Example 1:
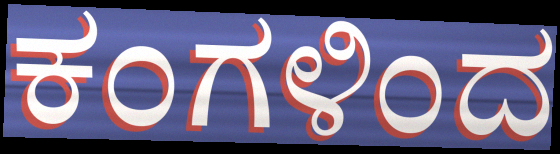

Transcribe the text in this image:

ಕಂಗಳಿಂದ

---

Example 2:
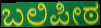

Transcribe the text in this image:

ಬಲಿಪೀಠ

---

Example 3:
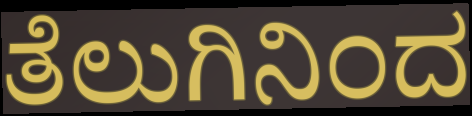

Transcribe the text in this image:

ತೆಲುಗಿನಿಂದ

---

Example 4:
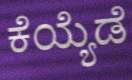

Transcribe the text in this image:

ಕೆಯ್ಯೆಡೆ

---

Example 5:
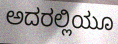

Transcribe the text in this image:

ಅದರಲ್ಲಿಯೂ